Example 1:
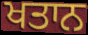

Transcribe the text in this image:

ਖਤਾਨ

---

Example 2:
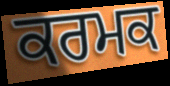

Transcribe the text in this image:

ਕਰਮਕ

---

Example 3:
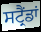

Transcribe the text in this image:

ਸਟ੍ਰੈਂਡਾਂ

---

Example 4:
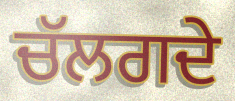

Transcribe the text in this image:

ਚੱਲਗਦੇ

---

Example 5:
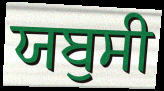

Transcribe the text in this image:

ਯਬੁਸੀ